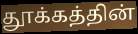
தூக்கத்தின்